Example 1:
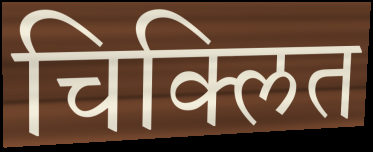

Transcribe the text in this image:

चिक्लित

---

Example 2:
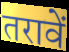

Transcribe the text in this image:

तरावें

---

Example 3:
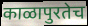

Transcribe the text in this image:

काळापुरतेच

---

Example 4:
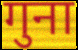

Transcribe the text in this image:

गुना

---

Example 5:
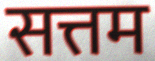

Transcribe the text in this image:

सत्तम